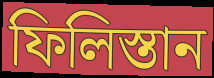
ফিলিস্তান